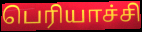
பெரியாச்சி